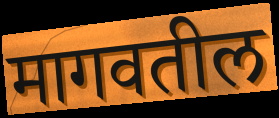
मागवतील